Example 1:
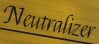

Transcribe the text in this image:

Neutralizer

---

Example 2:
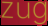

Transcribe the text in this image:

zug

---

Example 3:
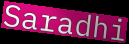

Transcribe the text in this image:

Saradhi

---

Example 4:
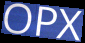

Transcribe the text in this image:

OPX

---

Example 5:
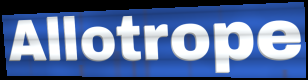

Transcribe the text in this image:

Allotrope